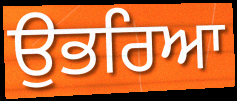
ਉਭਰਿਆ